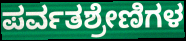
ಪರ್ವತಶ್ರೇಣಿಗಳ